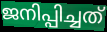
ജനിപ്പിച്ചത്